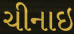
ચીનાઇ